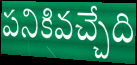
పనికివచ్చేది